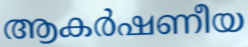
ആകർഷണീയ